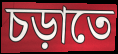
চড়াতে